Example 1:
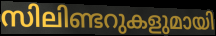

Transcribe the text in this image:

സിലിണ്ടറുകളുമായി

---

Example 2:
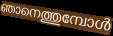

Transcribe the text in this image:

ഞാനെത്തുമ്പോൾ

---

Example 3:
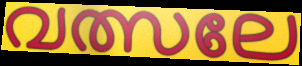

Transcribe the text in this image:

വത്സലേ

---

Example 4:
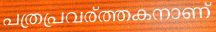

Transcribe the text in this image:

പത്രപ്രവര്ത്തകനാണ്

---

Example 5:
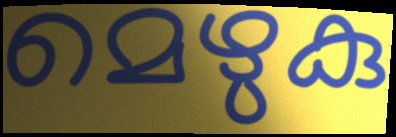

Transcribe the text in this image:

മെഴുകു